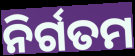
ନିର୍ଗତମ